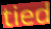
tied